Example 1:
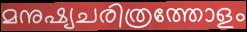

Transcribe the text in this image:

മനുഷ്യചരിത്രത്തോളം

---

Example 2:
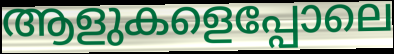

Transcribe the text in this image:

ആളുകളെപ്പോലെ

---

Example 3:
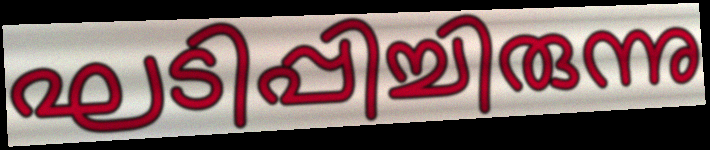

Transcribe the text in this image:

ഘടിപ്പിച്ചിരുന്നു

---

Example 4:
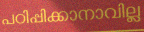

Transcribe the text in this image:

പഠിപ്പിക്കാനാവില്ല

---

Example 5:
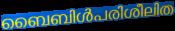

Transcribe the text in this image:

ബൈബിൾപരിശീലിത